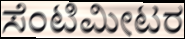
ಸೆಂಟಿಮೀಟರ